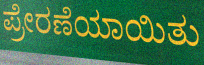
ಪ್ರೇರಣೆಯಾಯಿತು